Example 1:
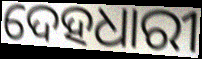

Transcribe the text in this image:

ଦେହଧାରୀ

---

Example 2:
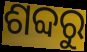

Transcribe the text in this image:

ଶବ୍ଦରୁ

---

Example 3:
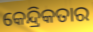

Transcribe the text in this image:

କେନ୍ଦ୍ରିକତାର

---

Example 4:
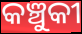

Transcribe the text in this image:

କଞ୍ଚୁକୀ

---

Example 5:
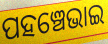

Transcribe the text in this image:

ପହଞ୍ଚେଭାଇ